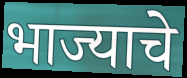
भाज्याचे